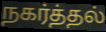
நகர்த்தல்